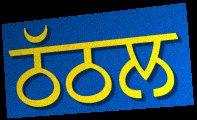
ਠੱਠਲ